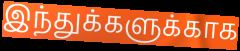
இந்துக்களுக்காக